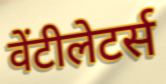
वेंटीलेटर्स